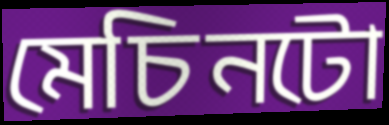
মেচিনটো